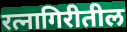
रत्नागिरीतील